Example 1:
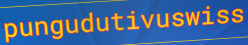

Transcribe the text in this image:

pungudutivuswiss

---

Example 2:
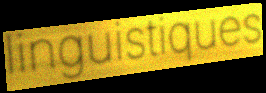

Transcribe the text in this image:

linguistiques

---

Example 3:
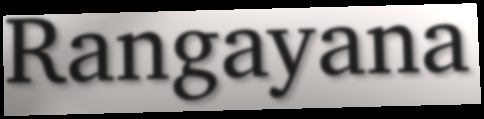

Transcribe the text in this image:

Rangayana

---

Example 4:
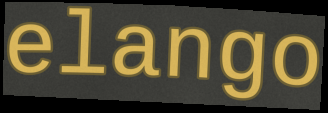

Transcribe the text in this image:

elango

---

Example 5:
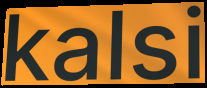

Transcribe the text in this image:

kalsi